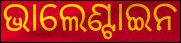
ଭାଲେଣ୍ଟାଇନ